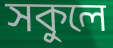
সকুলে